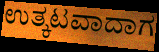
ಉತ್ಕಟವಾದಾಗ